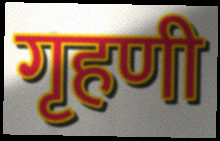
गृहणी